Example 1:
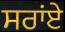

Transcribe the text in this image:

ਸਰਾਂਏ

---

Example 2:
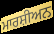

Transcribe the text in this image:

ਮਾਰਸ਼ੀਅਨ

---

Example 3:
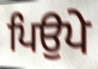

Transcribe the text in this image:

ਪਿਉਪੇ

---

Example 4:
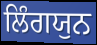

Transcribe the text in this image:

ਲਿੰਗਯੁਨ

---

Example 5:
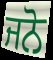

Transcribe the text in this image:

ਜਨੋ